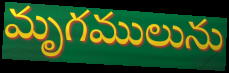
మృగములును